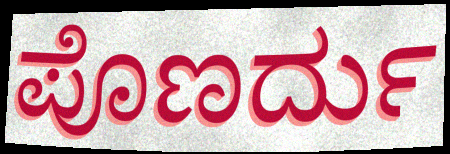
ಪೊಣರ್ದು